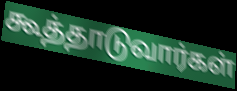
கூத்தாடுவார்கள்